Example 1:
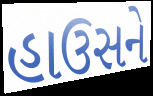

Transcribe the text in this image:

હાઉસને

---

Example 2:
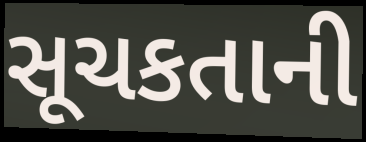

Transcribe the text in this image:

સૂચકતાની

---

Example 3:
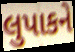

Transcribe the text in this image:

લુપાકને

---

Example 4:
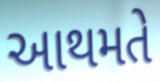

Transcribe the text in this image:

આથમતે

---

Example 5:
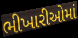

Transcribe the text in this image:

ભીખારીઓમાં